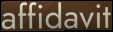
affidavit